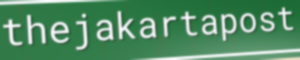
thejakartapost